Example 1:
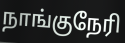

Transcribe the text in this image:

நாங்குநேரி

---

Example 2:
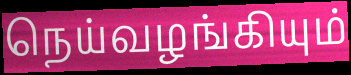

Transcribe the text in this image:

நெய்வழங்கியும்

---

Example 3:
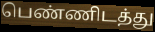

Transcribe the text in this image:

பெண்ணிடத்து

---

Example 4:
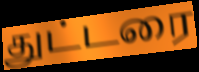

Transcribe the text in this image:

துட்டரை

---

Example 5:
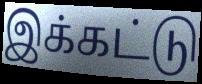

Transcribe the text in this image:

இக்கட்டு